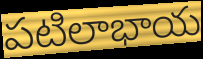
పటిలాభాయ